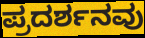
ಪ್ರದರ್ಶನವು